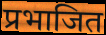
प्रभाजित